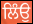
ਲਿੰਉ